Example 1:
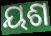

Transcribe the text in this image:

ୟଶ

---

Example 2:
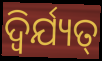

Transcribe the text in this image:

ଦ୍ୱିର୍ଯ୍ୟତ୍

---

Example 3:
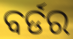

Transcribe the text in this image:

ବର୍ଡର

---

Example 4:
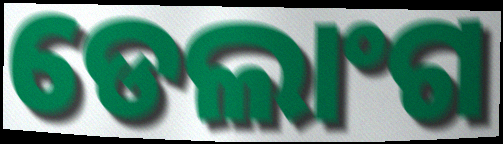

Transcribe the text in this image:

ଡେଲାଂଗ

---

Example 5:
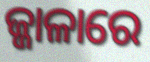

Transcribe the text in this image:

ଜ୍ଜାଳାରେ